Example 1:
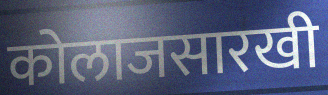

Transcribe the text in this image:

कोलाजसारखी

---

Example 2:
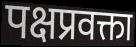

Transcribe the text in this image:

पक्षप्रवक्ता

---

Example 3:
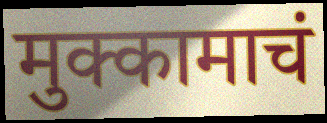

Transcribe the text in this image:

मुक्कामाचं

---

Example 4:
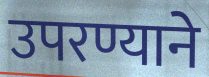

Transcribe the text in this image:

उपरण्याने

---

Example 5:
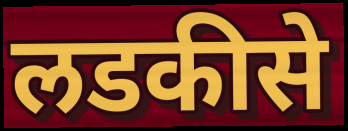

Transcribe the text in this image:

लडकीसे